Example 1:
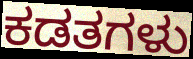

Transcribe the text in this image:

ಕಡತಗಳು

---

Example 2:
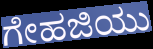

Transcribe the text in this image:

ಗೇಹಜಿಯು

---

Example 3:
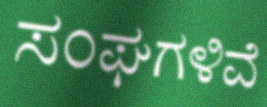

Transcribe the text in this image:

ಸಂಘಗಳಿವೆ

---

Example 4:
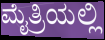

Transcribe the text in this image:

ಮೈತ್ರಿಯಲ್ಲಿ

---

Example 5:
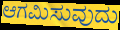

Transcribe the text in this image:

ಆಗಮಿಸುವುದು